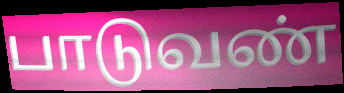
பாடுவண்